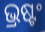
ଭ୍ରଷ୍ଟଂ